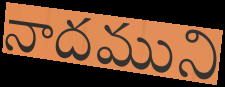
నాదముని